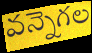
వన్నెగల